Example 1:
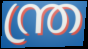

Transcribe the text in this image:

ന്ത്ര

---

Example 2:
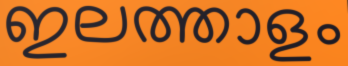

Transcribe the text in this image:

ഇലത്താളം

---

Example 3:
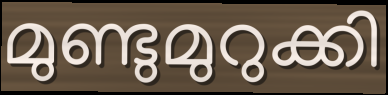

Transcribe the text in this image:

മുണ്ടുമുറുക്കി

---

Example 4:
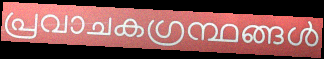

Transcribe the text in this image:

പ്രവാചകഗ്രന്ഥങ്ങൾ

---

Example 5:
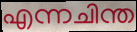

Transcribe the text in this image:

എന്നചിന്ത